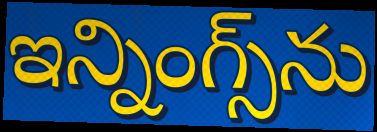
ఇన్నింగ్స్‌ను